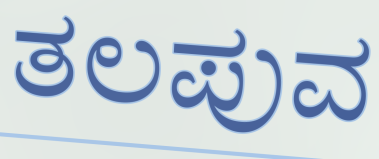
ತಲಪುವ